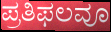
ಪ್ರತಿಫಲವೂ